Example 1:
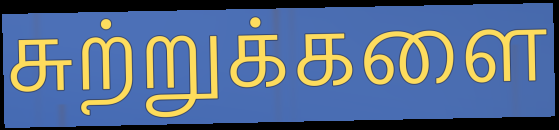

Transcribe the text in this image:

சுற்றுக்களை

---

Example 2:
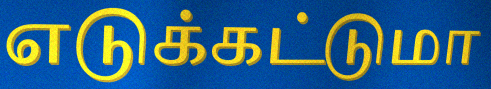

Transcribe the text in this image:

எடுக்கட்டுமா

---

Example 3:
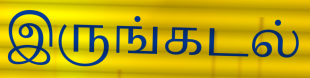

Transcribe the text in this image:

இருங்கடல்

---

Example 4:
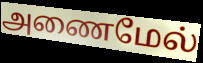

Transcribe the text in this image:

அணைமேல்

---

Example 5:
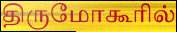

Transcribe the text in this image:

திருமோகூரில்